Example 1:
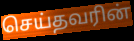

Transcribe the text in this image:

செய்தவரின்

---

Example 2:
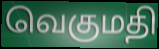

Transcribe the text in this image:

வெகுமதி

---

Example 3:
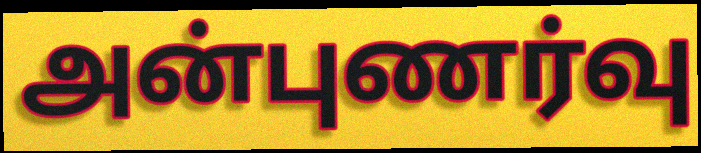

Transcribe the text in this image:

அன்புணர்வு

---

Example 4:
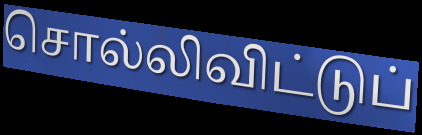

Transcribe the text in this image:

சொல்லிவிட்டுப்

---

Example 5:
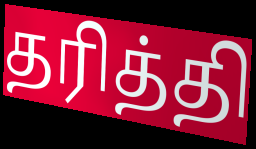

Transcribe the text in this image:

தரித்தி